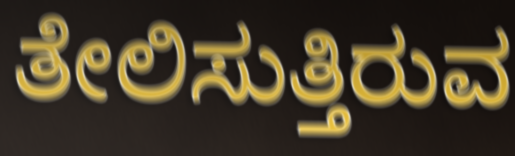
ತೇಲಿಸುತ್ತಿರುವ